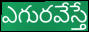
ఎగురవేస్తే